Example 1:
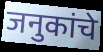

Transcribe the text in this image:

जनुकांचे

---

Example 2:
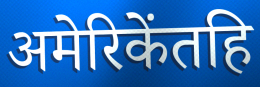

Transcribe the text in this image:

अमेरिकेंतहि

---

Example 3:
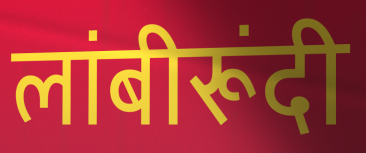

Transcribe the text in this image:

लांबीरूंदी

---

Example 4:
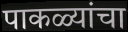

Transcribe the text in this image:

पाकळ्यांचा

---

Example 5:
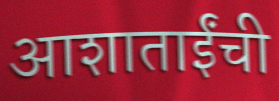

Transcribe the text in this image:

आशाताईंची